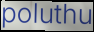
poluthu